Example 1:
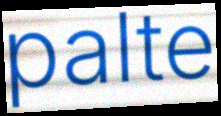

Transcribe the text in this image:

palte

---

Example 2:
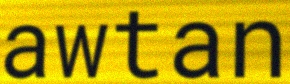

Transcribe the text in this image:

awtan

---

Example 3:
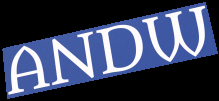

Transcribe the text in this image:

ANDW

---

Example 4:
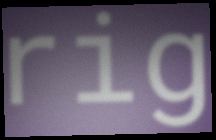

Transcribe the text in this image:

rig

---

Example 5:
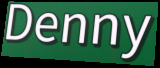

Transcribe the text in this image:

Denny